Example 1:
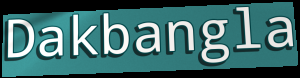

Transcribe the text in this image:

Dakbangla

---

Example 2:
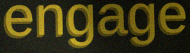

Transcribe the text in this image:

engage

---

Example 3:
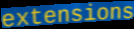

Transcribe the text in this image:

extensions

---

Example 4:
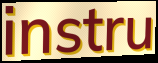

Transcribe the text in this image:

instru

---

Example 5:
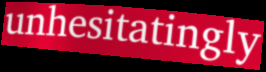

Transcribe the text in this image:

unhesitatingly